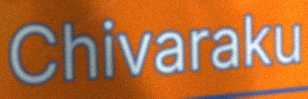
Chivaraku